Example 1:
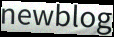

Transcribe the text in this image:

newblog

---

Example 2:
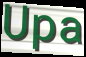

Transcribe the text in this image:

Upa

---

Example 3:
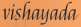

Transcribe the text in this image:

vishayada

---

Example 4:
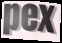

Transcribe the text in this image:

pex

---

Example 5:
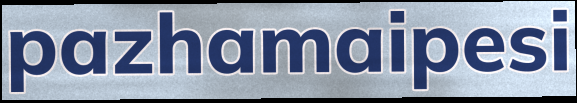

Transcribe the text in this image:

pazhamaipesi